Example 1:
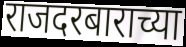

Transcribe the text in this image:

राजदरबाराच्या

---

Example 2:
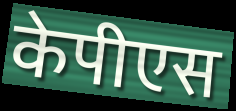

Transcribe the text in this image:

केपीएस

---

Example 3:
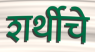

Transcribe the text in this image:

शर्थीचे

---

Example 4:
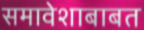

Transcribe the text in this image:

समावेशाबाबत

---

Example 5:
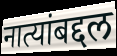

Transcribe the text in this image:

नात्यांबद्दल